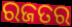
ରଜତର